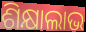
ଶିକ୍ଷାଲାଭ